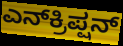
ಎನ್‌ಕ್ರಿಪ್ಷನ್